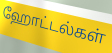
ஹோட்டல்கள்